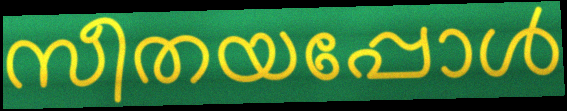
സീതയപ്പോൾ